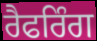
ਰੈਫਰਿੰਗ